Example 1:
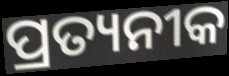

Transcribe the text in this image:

ପ୍ରତ୍ୟନୀକ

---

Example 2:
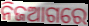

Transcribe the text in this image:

ନିଜଆଗରେ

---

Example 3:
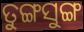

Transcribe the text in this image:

ତୁଙ୍ଗସୁଙ୍ଗ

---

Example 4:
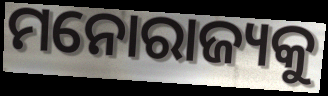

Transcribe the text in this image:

ମନୋରାଜ୍ୟକୁ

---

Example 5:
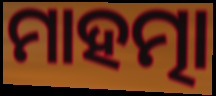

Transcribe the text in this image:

ମାହତ୍ମା